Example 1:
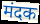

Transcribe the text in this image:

मंदक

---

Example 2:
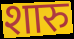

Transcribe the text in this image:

शारु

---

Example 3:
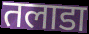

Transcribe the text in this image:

तलाडा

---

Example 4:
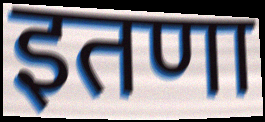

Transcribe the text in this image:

इतणा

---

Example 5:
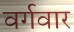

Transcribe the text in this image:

वर्गवार